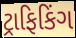
ટ્રાફિકિંગ